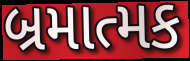
બ્રમાત્મક